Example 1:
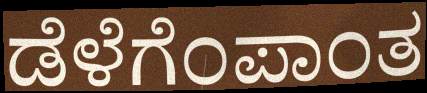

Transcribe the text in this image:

ಡೆಳೆಗೆಂಪಾಂತ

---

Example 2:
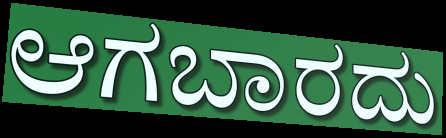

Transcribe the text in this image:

ಆಗಬಾರದು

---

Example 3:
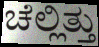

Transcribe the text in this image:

ಚೆಲ್ಲಿತ್ತು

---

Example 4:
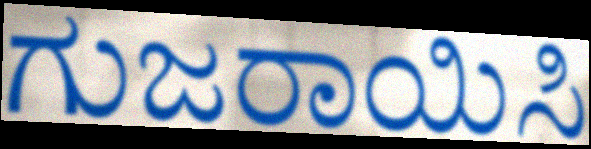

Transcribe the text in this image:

ಗುಜರಾಯಿಸಿ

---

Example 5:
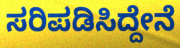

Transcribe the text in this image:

ಸರಿಪಡಿಸಿದ್ದೇನೆ